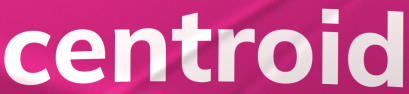
centroid